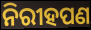
ନିରୀହପଣ